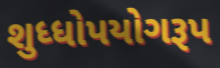
શુધ્ધોપયોગરૂપ